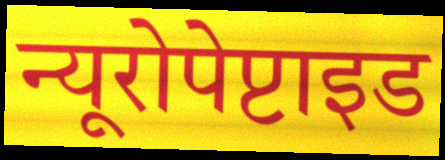
न्यूरोपेप्टाइड